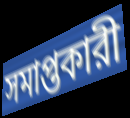
সমাপ্তকারী